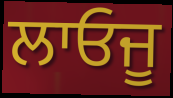
ਲਾਓਜੂ